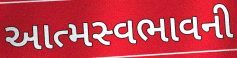
આત્મસ્વભાવની